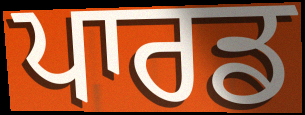
ਪਾਰਡ